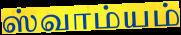
ஸ்வாம்யம்